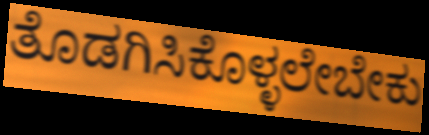
ತೊಡಗಿಸಿಕೊಳ್ಳಲೇಬೇಕು